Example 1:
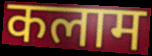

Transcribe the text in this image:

कलाम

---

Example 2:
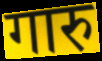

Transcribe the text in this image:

गारु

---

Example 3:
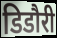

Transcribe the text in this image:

डिडौरी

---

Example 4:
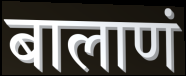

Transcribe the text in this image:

बालाणं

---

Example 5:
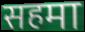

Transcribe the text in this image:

सहमा